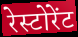
रेस्टोरेंट